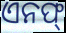
ଏନଫ୍